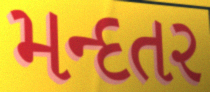
મન્દતર